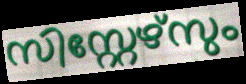
സിസ്റ്റേഴ്സും